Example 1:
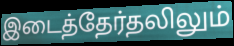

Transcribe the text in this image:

இடைத்தேர்தலிலும்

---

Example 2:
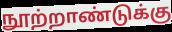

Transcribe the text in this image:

நூற்றாண்டுக்கு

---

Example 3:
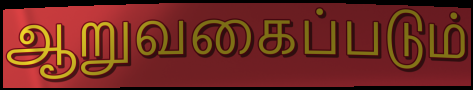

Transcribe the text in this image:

ஆறுவகைப்படும்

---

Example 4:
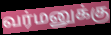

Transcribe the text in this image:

வர்மனுக்கு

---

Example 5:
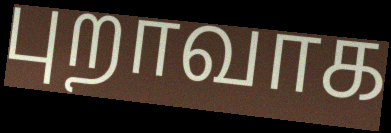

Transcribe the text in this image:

புறாவாக